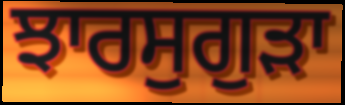
ਝਾਰਸੁਗੁੜਾ